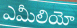
ఎమీలియో